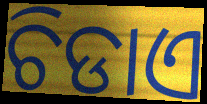
ଚିଡାଏ